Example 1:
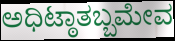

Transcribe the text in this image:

ಅಧಿಟ್ಠಾತಬ್ಬಮೇವ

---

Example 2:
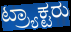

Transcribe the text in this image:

ಟ್ರ್ಯಾಕ್ಟರು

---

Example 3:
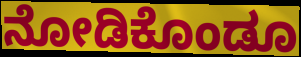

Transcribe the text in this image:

ನೋಡಿಕೊಂಡೂ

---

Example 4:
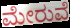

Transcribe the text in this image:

ಮೇರುವೆ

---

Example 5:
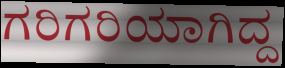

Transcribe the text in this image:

ಗರಿಗರಿಯಾಗಿದ್ದ